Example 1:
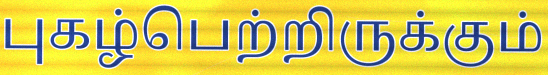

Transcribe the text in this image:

புகழ்பெற்றிருக்கும்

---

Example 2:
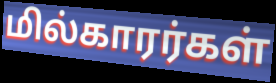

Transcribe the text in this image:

மில்காரர்கள்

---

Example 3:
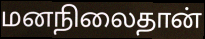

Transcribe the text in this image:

மனநிலைதான்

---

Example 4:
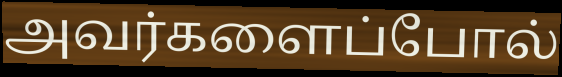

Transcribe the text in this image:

அவர்களைப்போல்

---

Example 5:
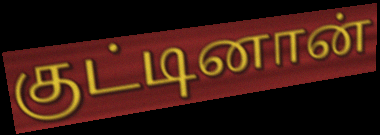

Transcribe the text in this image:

குட்டினான்